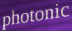
photonic